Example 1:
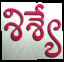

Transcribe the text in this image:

శిశ్యే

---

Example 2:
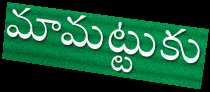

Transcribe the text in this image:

మామట్టుకు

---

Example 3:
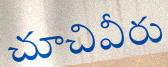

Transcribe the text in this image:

చూచివీరు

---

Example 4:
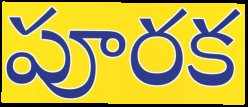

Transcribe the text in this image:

పూరక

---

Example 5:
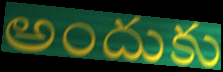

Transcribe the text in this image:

అందుకు